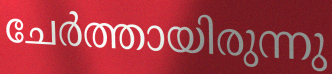
ചേർത്തായിരുന്നു